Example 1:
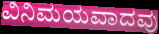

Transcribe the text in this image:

ವಿನಿಮಯವಾದವು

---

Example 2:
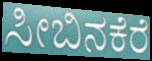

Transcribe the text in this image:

ಸೀಬಿನಕೆರೆ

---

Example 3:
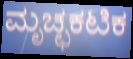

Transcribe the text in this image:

ಮೃಚ್ಛಕಟಿಕ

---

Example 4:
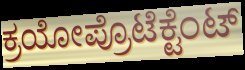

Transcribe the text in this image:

ಕ್ರಯೋಪ್ರೊಟೆಕ್ಟೆಂಟ್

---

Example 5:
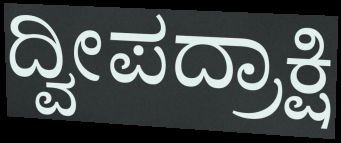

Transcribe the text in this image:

ದ್ವೀಪದ್ರಾಕ್ಷಿ